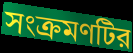
সংক্রমণটির